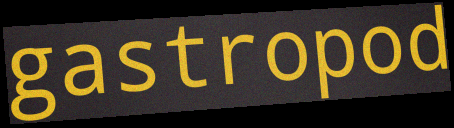
gastropod